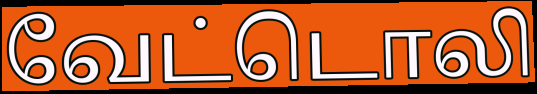
வேட்டொலி